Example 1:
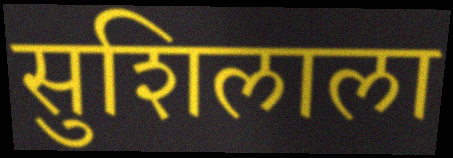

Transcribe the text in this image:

सुशिलाला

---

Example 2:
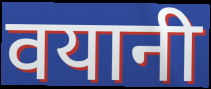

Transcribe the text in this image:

वयानी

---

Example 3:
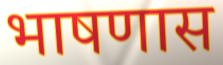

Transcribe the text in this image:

भाषणास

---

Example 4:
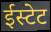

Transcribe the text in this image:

ईस्टेट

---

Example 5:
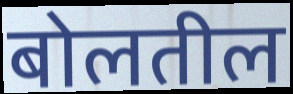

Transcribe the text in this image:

बोलतील